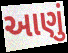
આણું